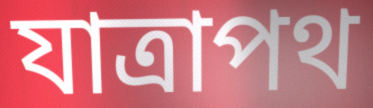
যাত্রাপথ